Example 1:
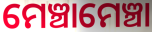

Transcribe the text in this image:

ମେଞ୍ଚାମେଞ୍ଚା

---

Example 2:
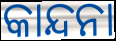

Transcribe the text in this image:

କାନ୍ଦନା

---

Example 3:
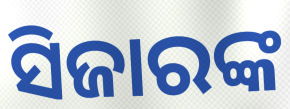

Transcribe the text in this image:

ସିଜାରଙ୍କ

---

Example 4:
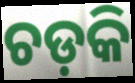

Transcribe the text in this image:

ଚଡ଼କି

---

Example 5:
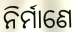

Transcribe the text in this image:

ନିର୍ମାଣେ